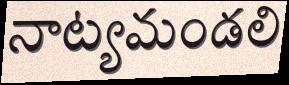
నాట్యమండలి